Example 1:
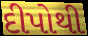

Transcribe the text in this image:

દીપોથી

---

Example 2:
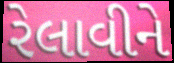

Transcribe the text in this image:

રેલાવીને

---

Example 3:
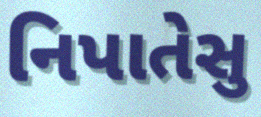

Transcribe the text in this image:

નિપાતેસુ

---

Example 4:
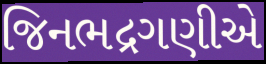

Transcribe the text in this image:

જિનભદ્રગણીએ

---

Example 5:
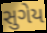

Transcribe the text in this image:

સુગેય